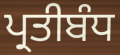
ਪ੍ਰਤੀਬੰਧ